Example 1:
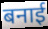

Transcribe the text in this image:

बनाई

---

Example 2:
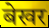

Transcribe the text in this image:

बेखर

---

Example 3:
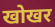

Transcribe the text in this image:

खोखर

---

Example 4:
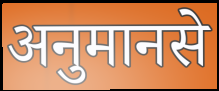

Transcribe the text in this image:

अनुमानसे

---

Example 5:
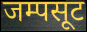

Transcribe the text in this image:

जम्पसूट